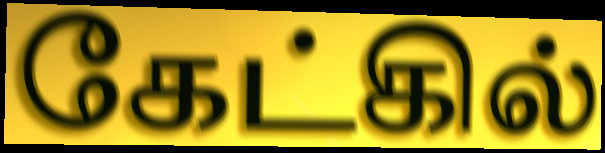
கேட்கில்